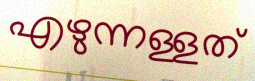
എഴുന്നള്ളത്